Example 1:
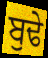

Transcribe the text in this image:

ਬੁਢੇ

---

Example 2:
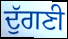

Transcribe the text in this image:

ਦੁੱਗਣੀ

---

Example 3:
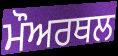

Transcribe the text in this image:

ਮੌਅਰਥਲ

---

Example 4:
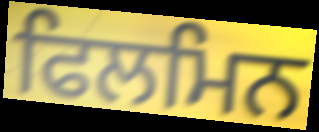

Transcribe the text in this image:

ਫਿਲਮਿਨ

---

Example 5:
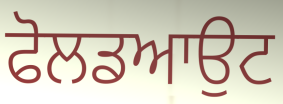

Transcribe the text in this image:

ਫੋਲਡਆਉਟ